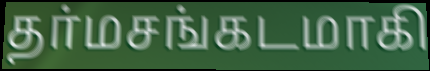
தர்மசங்கடமாகி